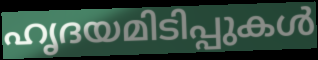
ഹൃദയമിടിപ്പുകൾ